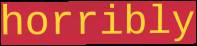
horribly